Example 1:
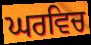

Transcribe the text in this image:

ਘਰਵਿਚ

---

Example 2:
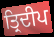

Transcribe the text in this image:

ਤ੍ਰਿਦੀਪ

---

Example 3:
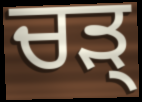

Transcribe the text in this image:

ਚੜ੍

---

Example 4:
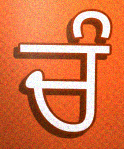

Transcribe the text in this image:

ਚੰ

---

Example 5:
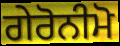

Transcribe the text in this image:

ਗੇਰੋਨੀਮੋ